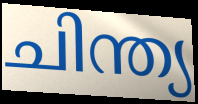
ചിന്ത്യ